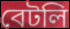
বেটলি